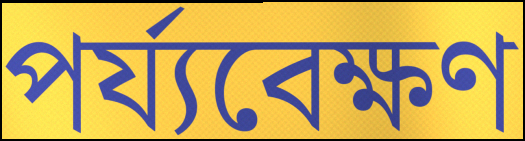
পৰ্য্যবেক্ষণ